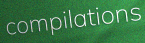
compilations